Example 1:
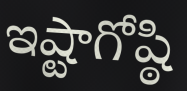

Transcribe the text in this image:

ఇష్టాగోష్ఠి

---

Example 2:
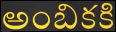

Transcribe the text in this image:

అంబికకి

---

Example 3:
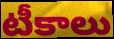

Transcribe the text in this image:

టీకాలు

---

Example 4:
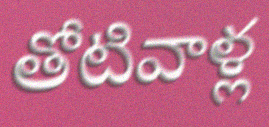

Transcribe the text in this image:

తోటివాళ్ల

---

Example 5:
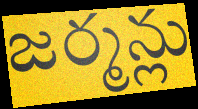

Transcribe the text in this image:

జర్మన్లు